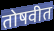
तोषवीत